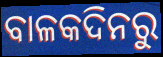
ବାଳକଦିନରୁ